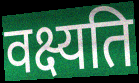
वक्ष्यति